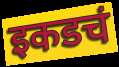
इकडचं